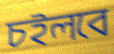
চইলবে